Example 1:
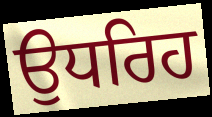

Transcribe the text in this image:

ਉਧਰਿਹ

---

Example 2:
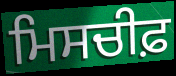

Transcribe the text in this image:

ਮਿਸਚੀਫ਼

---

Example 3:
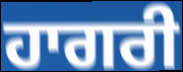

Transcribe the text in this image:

ਹਾਗਰੀ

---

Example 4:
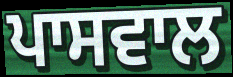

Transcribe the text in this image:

ਪਾਸਵਾਲ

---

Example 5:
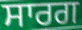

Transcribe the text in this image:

ਸਾਰਗ